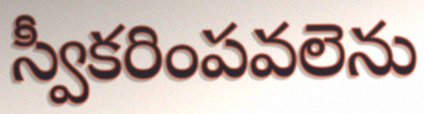
స్వీకరింపవలెను